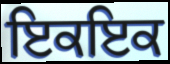
ਇਕਇਕ